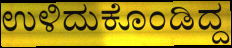
ಉಳಿದುಕೊಂಡಿದ್ದ